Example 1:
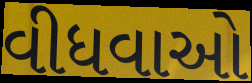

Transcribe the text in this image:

વીધવાઓ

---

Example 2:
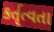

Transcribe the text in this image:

કર્તૃત્વતા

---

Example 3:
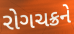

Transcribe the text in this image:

રોગચક્રને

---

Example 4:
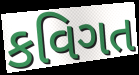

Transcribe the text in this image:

કવિગત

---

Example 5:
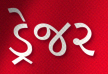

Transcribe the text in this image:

ડ્રેજર